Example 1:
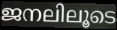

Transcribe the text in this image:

ജനലിലൂടെ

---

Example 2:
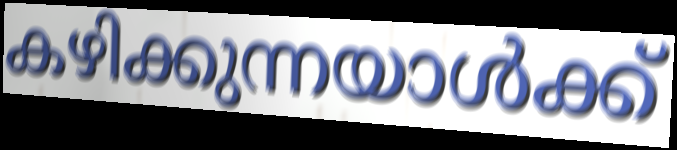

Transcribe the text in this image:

കഴിക്കുന്നയാൾക്ക്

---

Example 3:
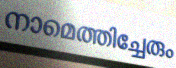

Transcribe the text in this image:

നാമെത്തിച്ചേരും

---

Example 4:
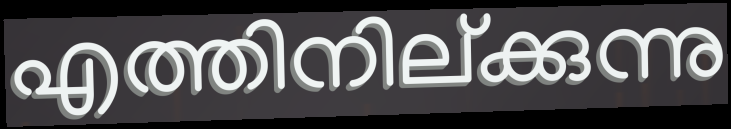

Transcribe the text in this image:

എത്തിനില്ക്കുന്നു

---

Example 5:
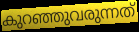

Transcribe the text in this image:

കുറഞ്ഞുവരുന്നത്